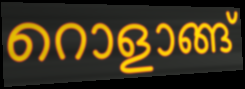
റൊളാങ്ങ്